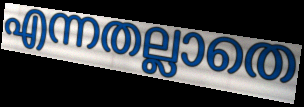
എന്നതല്ലാതെ